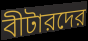
বীটারদের